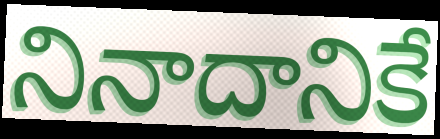
నినాదానికే